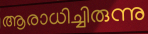
ആരാധിച്ചിരുന്നു